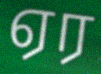
ஏர